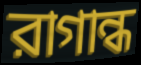
রাগান্ধ